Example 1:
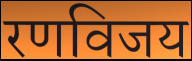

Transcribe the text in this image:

रणविजय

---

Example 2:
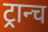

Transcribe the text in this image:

ट्रान्च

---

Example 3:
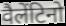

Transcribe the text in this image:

वैलेंटिनो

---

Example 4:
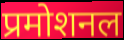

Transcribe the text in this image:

प्रमोशनल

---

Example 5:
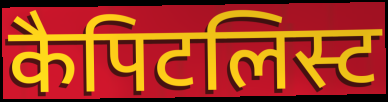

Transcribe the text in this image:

कैपिटलिस्ट